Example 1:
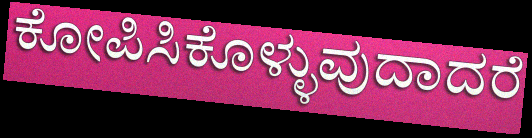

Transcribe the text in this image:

ಕೋಪಿಸಿಕೊಳ್ಳುವುದಾದರೆ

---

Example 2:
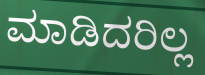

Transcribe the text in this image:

ಮಾಡಿದರಿಲ್ಲ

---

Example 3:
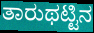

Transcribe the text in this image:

ತಾರುಥಟ್ಟಿನ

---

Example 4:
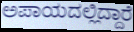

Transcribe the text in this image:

ಅಪಾಯದಲ್ಲಿದ್ದಾರೆ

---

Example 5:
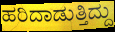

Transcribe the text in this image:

ಹರಿದಾಡುತ್ತಿದ್ದು